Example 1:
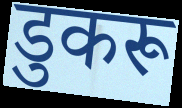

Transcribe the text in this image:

डुकरू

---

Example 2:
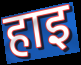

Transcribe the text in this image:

हाइ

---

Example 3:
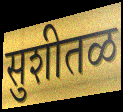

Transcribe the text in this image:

सुशीतळ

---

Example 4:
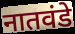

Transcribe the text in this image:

नातवंडे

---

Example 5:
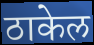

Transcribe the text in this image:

ठाकेल